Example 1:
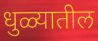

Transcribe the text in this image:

धुळ्यातील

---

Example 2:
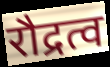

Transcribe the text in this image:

रौद्रत्व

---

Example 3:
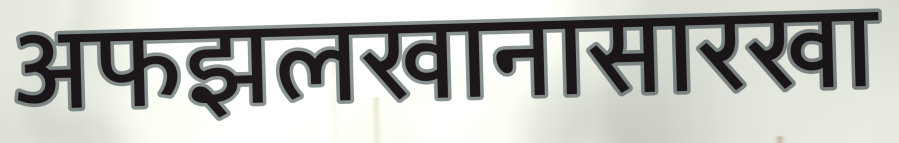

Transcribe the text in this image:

अफझलखानासारखा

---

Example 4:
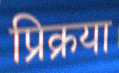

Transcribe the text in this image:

प्रिक्रया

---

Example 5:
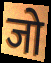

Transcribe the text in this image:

जो